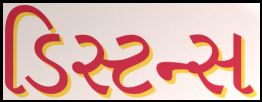
ડિસ્ટન્સ